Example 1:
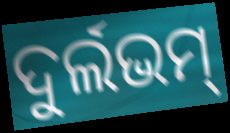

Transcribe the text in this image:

ଦୁର୍ଲଭମ୍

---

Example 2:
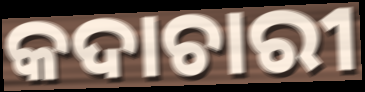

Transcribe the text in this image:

କଦାଚାରୀ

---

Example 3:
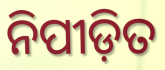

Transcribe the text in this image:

ନିପୀଡ଼ିତ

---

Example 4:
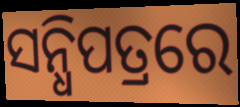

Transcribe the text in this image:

ସନ୍ଧିପତ୍ରରେ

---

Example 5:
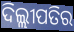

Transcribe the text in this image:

ଦିଲ୍ଲୀପତିର